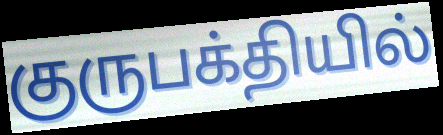
குருபக்தியில்